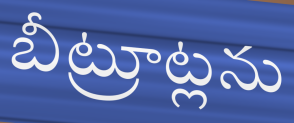
బీట్రూట్లను